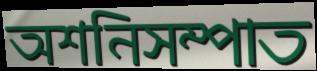
অশনিসম্পাত